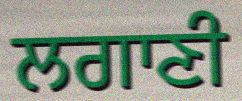
ਲਗਾਣੀ